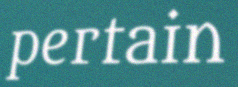
pertain